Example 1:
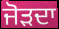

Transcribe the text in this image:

ਜੋੜਦਾ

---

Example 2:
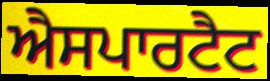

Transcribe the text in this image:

ਐਸਪਾਰਟੈਟ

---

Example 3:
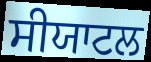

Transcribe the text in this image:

ਸੀਯਾਟਲ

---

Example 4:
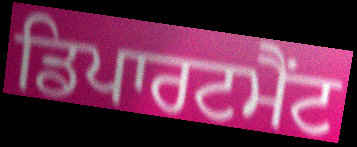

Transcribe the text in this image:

ਡਿਪਾਰਟਮੈਂਟ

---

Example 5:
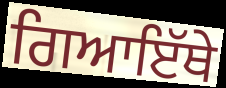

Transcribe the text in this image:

ਗਿਆਇੱਥੇ